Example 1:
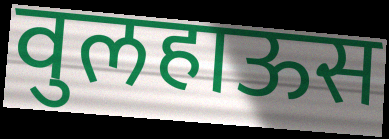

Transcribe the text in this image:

वुलहाऊस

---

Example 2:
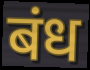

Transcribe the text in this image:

बंध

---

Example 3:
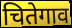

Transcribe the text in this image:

चितेगाव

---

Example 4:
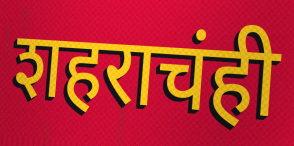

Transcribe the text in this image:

शहराचंही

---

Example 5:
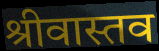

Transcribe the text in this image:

श्रीवास्तव